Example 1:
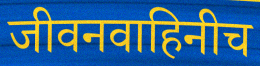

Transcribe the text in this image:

जीवनवाहिनीच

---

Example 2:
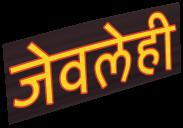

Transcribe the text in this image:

जेवलेही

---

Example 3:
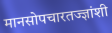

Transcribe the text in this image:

मानसोपचारतज्ज्ञांशी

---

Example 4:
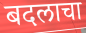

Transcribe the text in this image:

बदलाचा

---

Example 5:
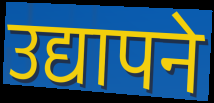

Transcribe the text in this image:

उद्यापने